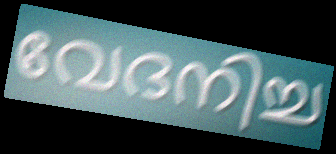
വേദനിച്ച